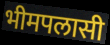
भीमपलासी